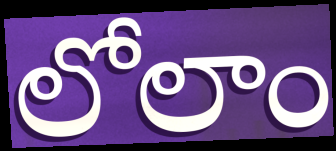
లోలాం